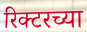
रिक्टरच्या